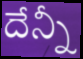
దేన్నీ